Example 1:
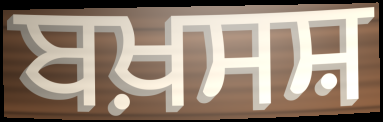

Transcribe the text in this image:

ਬਖ਼ਸਸ਼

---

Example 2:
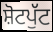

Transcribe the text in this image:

ਸ਼ੋਟਪੁੱਟ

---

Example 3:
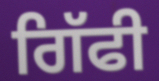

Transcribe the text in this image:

ਗਿੱਫੀ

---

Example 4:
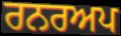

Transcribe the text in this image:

ਰਨਰਅਪ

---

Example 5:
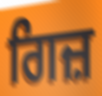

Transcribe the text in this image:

ਗਿਜ਼